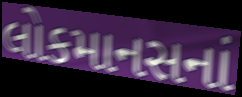
લોકમાનસનાં